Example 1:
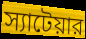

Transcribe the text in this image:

স্যাটেয়ার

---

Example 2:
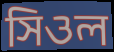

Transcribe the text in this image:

সিওল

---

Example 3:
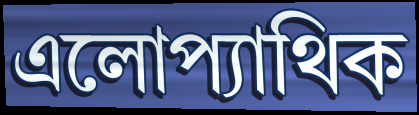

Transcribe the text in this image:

এলোপ্যাথিক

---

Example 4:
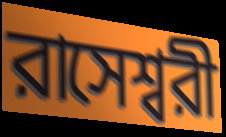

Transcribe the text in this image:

রাসেশ্বরী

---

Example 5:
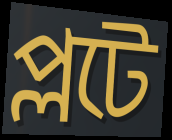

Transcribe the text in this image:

প্লটে